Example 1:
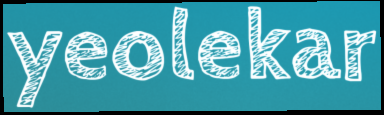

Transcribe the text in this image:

yeolekar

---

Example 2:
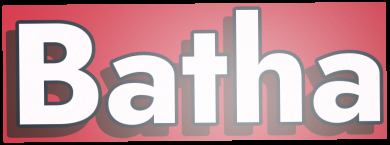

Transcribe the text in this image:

Batha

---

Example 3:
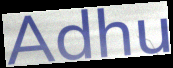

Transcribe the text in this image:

Adhu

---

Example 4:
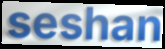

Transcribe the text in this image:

seshan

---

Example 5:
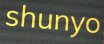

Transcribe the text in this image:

shunyo